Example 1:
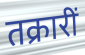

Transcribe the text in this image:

तक्रारीं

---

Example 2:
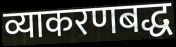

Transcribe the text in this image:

व्याकरणबद्ध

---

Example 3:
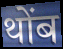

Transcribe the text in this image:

थोंब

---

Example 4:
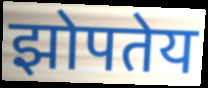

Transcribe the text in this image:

झोपतेय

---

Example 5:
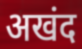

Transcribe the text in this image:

अखंद